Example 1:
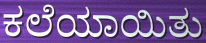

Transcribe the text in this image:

ಕಲೆಯಾಯಿತು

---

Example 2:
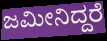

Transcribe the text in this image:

ಜಮೀನಿದ್ದರೆ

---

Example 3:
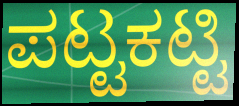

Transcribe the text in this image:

ಪಟ್ಟಕಟ್ಟಿ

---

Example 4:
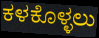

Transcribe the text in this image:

ಕಳಕೊಳ್ಳಲು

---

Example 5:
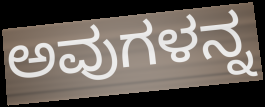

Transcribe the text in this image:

ಅವುಗಳನ್ನ